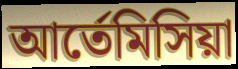
আর্তেমিসিয়া